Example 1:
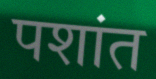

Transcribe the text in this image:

पशांत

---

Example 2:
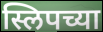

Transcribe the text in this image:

स्लिपच्या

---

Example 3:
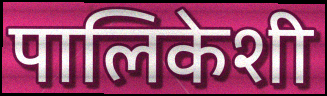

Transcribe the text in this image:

पालिकेशी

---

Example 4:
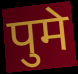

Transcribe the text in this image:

पुमे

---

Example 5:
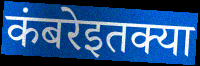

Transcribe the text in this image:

कंबरेइतक्या